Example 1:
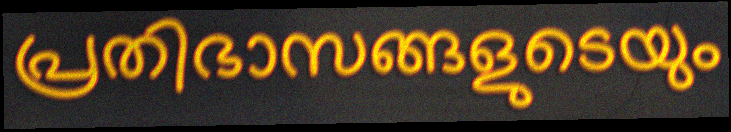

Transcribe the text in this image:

പ്രതിഭാസങ്ങളുടെയും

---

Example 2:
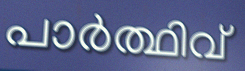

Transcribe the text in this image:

പാർത്ഥിവ്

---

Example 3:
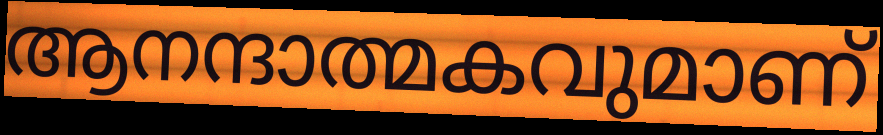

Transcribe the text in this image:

ആനന്ദാത്മകവുമാണ്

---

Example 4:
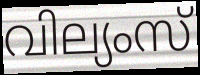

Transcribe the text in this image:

വില്യംസ്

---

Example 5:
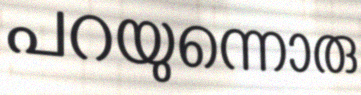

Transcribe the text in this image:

പറയുന്നൊരു